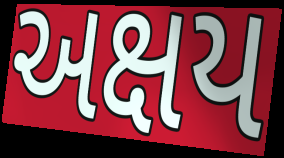
અક્ષય